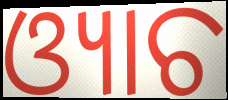
ଓ୍ୟାଚ